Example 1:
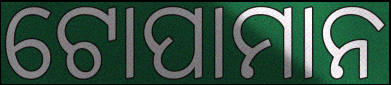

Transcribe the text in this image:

ଟୋପାମାନ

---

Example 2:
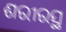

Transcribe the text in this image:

ଶରୀରସ୍ଥ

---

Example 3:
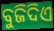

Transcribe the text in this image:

ବୁଜିଦିଏ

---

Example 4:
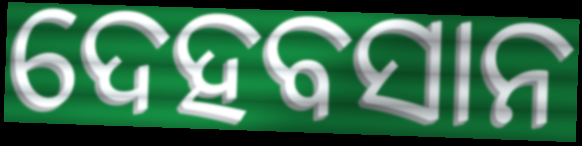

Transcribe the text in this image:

ଦେହବସାନ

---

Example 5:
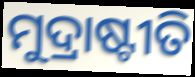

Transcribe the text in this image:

ମୁଦ୍ରାଷ୍ଟୀତି